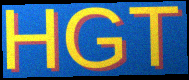
HGT